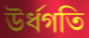
উর্ধগতি